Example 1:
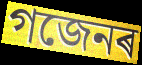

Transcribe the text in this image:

গজেনৰ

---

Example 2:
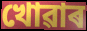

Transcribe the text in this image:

খোৱাৰ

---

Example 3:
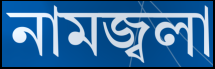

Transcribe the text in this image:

নামজ্বলা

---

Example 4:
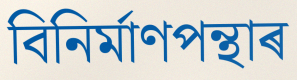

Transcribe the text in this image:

বিনিৰ্মাণপন্থাৰ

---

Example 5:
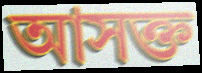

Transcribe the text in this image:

আসক্ত